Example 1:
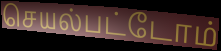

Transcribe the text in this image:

செயல்பட்டோம்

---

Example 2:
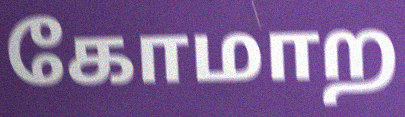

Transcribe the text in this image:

கோமாற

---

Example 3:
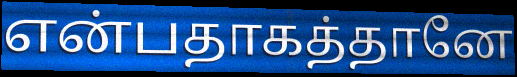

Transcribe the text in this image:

என்பதாகத்தானே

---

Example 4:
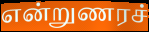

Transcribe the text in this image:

என்றுணரச்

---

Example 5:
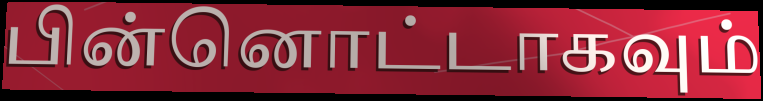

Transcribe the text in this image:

பின்னொட்டாகவும்